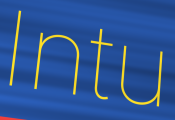
Intu